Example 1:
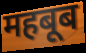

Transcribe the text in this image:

महबूब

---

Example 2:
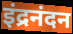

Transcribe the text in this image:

इंद्रनंदन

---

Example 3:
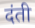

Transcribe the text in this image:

दंती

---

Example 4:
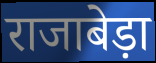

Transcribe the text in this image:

राजाबेड़ा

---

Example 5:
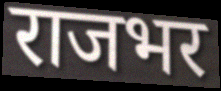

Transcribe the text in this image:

राजभर